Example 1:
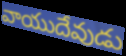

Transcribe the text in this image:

వాయుదేవుడు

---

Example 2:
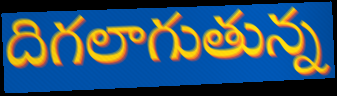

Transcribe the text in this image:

దిగలాగుతున్న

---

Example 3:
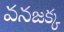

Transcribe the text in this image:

వనజక్క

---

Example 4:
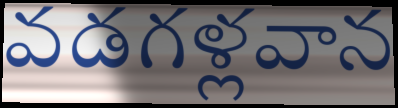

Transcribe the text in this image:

వడగళ్లవాన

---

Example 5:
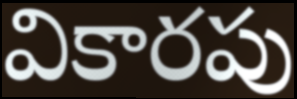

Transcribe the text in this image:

వికారపు